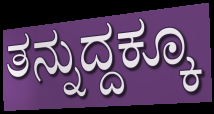
ತನ್ನುದ್ದಕ್ಕೂ